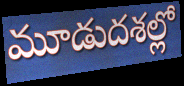
మూడుదశల్లో